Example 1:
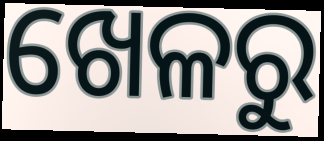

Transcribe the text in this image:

ଖେଳରୁ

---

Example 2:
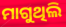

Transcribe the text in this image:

ମାଗୁଥିଲି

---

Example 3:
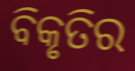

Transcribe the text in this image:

ବିକୃତିର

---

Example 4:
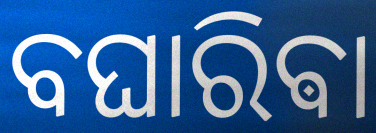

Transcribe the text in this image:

ବଘାରିଵା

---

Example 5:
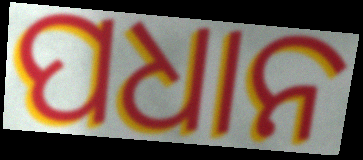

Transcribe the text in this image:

ପଧାନ